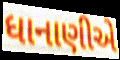
ધાનાણીએ